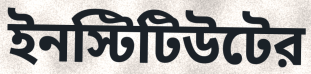
ইনস্টিটিউটের